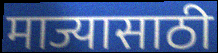
माज्यासाठी